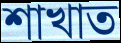
শাখাত